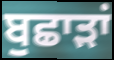
ਬੁਛਾੜਾਂ